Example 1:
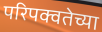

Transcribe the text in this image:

परिपक्वतेच्या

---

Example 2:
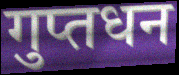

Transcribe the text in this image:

गुप्तधन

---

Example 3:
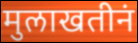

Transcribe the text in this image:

मुलाखतीनं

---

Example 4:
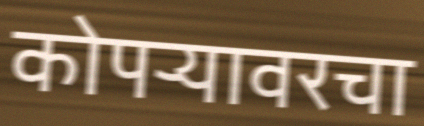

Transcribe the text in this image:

कोपऱ्यावरचा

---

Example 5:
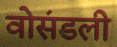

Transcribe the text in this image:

वोसंडली